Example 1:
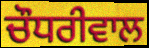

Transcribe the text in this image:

ਚੌਧਰੀਵਾਲ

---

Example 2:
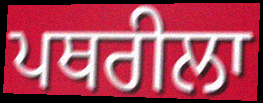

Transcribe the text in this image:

ਪਥਰੀਲਾ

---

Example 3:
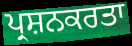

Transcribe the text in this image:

ਪ੍ਰਸ਼ਨਕਰਤਾ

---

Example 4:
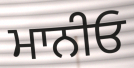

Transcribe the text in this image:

ਮਾਨੀਓ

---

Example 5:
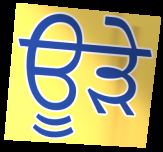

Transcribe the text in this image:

ਊੜੇ